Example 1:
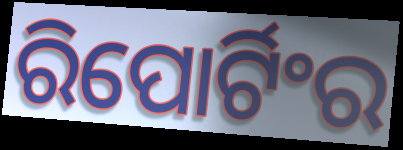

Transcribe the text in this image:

ରିପୋର୍ଟିଂର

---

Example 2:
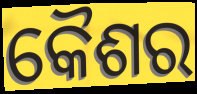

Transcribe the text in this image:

କୈଶର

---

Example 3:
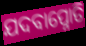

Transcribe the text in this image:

ଯଦବାପ୍ନୋତି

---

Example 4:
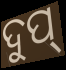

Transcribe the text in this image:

ଦୁପ୍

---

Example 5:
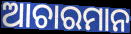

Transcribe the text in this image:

ଆଚାରମାନ